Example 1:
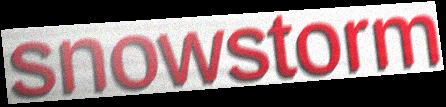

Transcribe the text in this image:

snowstorm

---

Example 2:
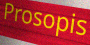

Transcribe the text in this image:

Prosopis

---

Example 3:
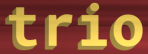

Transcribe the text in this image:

trio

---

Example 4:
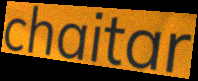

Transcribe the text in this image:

chaitar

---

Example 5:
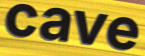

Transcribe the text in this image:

cave